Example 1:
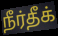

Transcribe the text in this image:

நீர்தீக்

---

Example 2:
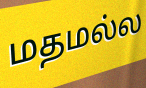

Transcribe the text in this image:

மதமல்ல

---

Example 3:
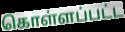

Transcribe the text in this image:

கொள்ளப்பட்ட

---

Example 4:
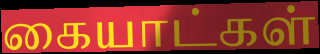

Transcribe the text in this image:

கையாட்கள்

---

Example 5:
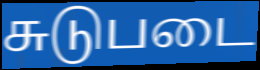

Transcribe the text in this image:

சுடுபடை